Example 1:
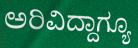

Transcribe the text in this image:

ಅರಿವಿದ್ದಾಗ್ಯೂ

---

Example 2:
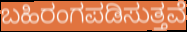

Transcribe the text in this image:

ಬಹಿರಂಗಪಡಿಸುತ್ತವೆ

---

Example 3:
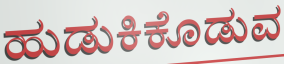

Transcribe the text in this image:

ಹುಡುಕಿಕೊಡುವ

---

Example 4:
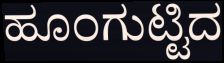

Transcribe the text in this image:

ಹೂಂಗುಟ್ಟಿದ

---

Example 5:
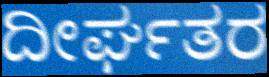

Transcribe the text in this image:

ದೀರ್ಘತರ